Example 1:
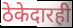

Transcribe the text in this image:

ठेकेदारही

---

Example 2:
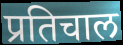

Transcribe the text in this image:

प्रतिचाल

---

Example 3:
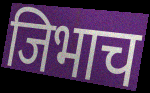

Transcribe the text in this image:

जिभाच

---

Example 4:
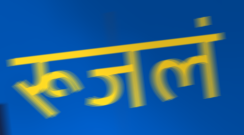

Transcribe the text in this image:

रूजलं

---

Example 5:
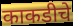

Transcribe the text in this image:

काकडीचे